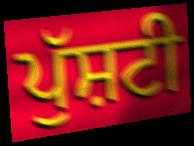
ਪੁੱਸ਼ਟੀ